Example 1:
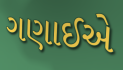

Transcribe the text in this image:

ગણાઈએ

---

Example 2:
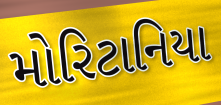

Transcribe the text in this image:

મોરિટાનિયા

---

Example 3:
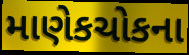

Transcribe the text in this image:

માણેકચોકના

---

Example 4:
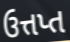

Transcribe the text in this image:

ઉત્તપ્ત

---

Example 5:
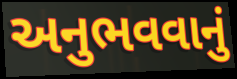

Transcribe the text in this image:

અનુભવવાનું